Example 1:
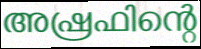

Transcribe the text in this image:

അഷ്രഫിന്റെ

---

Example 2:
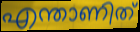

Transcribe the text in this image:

എന്താണിത്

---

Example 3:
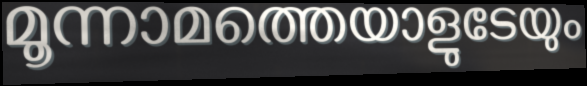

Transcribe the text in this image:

മൂന്നാമത്തെയാളുടേയും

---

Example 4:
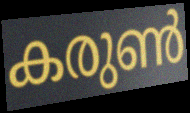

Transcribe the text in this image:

കരുൺ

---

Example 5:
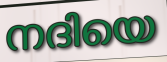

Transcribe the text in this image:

നദിയെ